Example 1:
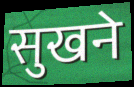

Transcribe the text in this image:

सुखने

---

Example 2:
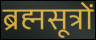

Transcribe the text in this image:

ब्रह्मसूत्रों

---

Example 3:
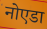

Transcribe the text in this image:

नोएडा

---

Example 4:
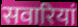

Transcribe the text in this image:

सवारियां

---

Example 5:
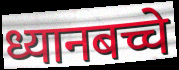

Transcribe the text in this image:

ध्यानबच्चे